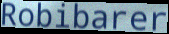
Robibarer